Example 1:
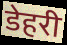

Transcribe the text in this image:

डेहरी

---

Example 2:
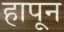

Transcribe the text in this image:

हापून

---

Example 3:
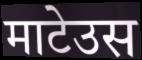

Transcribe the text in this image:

माटेउस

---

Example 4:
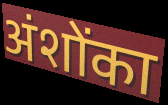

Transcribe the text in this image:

अंशोंका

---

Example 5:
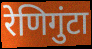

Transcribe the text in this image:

रेणिगुंटा